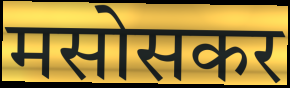
मसोसकर